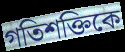
গতিশক্তিকে